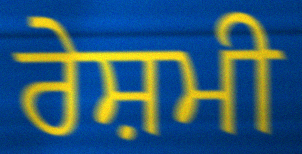
ਰੇਸ਼ਮੀ